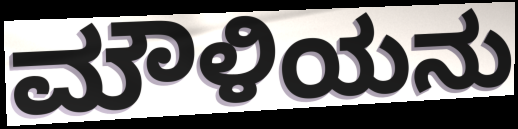
ಮೌಳಿಯನು